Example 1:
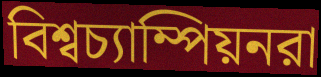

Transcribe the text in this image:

বিশ্বচ্যাম্পিয়নরা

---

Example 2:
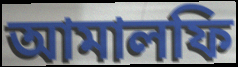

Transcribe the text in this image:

আমালফি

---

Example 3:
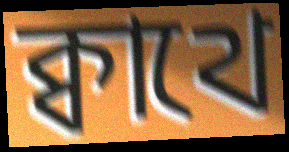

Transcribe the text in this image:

ক্বাথে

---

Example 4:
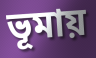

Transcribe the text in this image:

ভূমায়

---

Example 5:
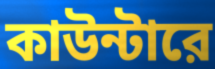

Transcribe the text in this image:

কাউন্টারে